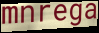
mnrega